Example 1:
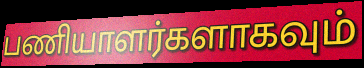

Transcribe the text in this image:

பணியாளர்களாகவும்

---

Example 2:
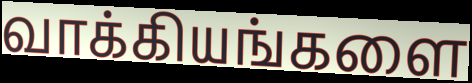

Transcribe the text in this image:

வாக்கியங்களை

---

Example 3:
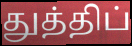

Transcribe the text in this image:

துத்திப்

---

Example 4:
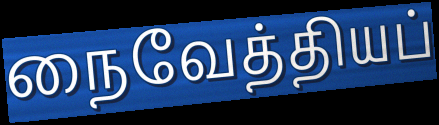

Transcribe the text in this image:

நைவேத்தியப்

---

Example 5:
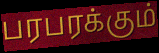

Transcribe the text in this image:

பரபரக்கும்